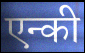
एन्की